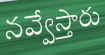
నవ్వేస్తారు